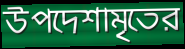
উপদেশামৃতের